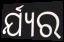
ର୍ଯ୍ୟର